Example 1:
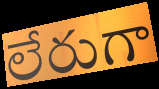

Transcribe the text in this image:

లేరుగా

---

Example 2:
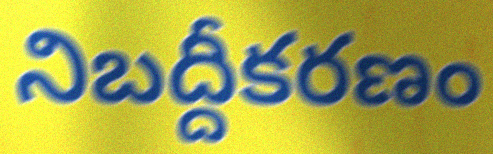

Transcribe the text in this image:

నిబద్దీకరణం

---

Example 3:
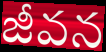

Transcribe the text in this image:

జీవన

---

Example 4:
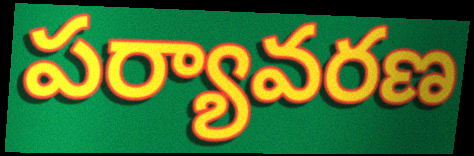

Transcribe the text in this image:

పర్యావరణ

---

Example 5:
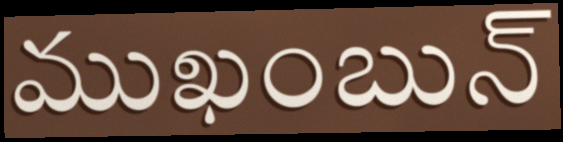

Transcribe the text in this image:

ముఖంబున్